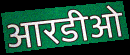
आरडीओ